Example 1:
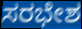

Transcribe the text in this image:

ಸರಭೇಶ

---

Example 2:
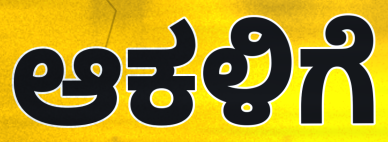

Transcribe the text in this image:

ಆಕಳಿಗೆ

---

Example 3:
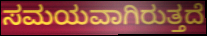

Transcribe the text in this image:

ಸಮಯವಾಗಿರುತ್ತದೆ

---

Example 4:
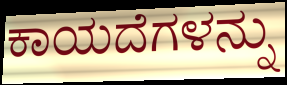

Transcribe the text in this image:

ಕಾಯದೆಗಳನ್ನು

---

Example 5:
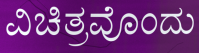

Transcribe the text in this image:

ವಿಚಿತ್ರವೊಂದು